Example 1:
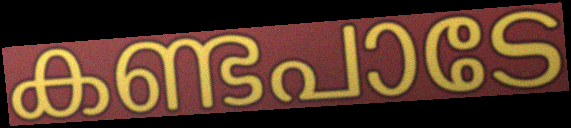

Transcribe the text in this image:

കണ്ടപാടേ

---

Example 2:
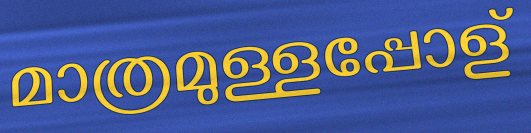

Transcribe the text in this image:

മാത്രമുള്ളപ്പോള്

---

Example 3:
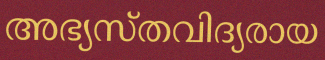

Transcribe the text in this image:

അഭ്യസ്തവിദ്യരായ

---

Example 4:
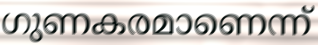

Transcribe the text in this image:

ഗുണകരമാണെന്ന്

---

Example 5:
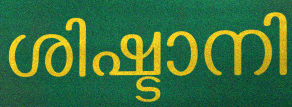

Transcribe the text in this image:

ശിഷ്ടാനി